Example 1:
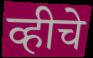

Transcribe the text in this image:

व्हीचे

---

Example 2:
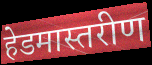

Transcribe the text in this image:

हेडमास्तरीण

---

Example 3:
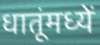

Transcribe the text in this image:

धातूंमध्यें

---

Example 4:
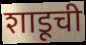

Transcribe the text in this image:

शाडूची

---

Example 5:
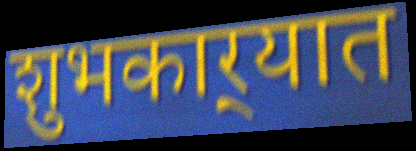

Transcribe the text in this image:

शुभकार्यात